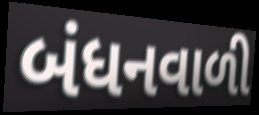
બંધનવાળી